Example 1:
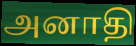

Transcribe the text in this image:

அனாதி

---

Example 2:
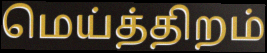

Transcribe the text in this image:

மெய்த்திறம்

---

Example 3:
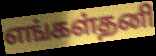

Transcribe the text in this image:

எங்கள்தனி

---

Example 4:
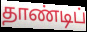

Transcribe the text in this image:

தாண்டிப்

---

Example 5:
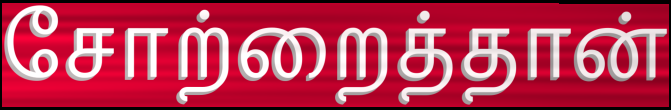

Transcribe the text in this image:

சோற்றைத்தான்